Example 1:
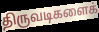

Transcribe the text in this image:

திருவடிகளைக்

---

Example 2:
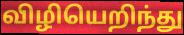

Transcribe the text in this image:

விழியெறிந்து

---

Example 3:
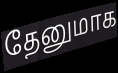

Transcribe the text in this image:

தேனுமாக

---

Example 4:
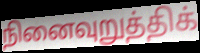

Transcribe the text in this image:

நினைவுறுத்திக்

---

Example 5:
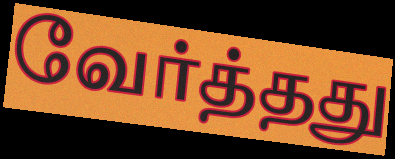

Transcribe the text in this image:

வேர்த்தது